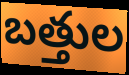
బత్తుల